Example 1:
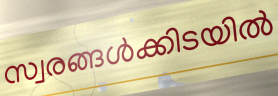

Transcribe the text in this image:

സ്വരങ്ങൾക്കിടയിൽ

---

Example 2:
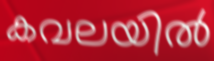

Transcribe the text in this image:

കവലയിൽ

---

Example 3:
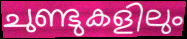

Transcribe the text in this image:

ചുണ്ടുകളിലും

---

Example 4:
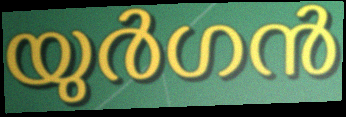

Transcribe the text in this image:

യുർഗൻ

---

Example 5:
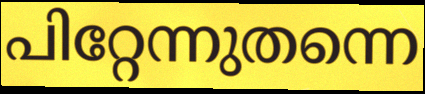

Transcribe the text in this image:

പിറ്റേന്നുതന്നെ